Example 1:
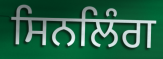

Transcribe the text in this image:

ਸਿਨਲਿੰਗ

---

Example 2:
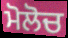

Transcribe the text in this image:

ਮੋਲੋਚ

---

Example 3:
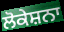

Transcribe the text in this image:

ਲੋਕੇਸ਼ਨਾ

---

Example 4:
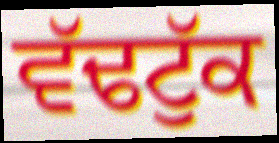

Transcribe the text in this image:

ਵੱਢਟੁੱਕ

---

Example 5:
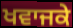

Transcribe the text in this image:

ਖਵਾਜਕੇ